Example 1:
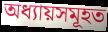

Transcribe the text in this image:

অধ্যায়সমূহত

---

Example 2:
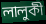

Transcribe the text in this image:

লালুকী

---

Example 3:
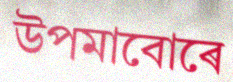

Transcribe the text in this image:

উপমাবোৰে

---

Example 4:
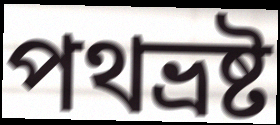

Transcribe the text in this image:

পথভ্ৰষ্ট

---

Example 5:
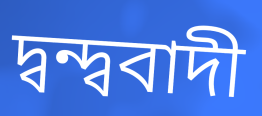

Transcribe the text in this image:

দ্বন্দ্ববাদী